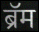
ब्रॅम